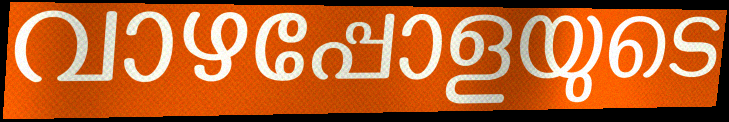
വാഴപ്പോളയുടെ